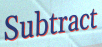
Subtract